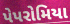
પેપરોમિયા